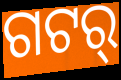
ଗଟର୍